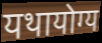
यथायोग्य